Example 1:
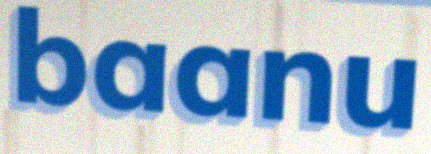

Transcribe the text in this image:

baanu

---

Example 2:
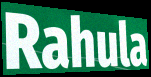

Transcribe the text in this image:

Rahula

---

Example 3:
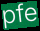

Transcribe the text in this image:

pfe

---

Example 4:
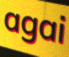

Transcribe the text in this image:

agai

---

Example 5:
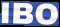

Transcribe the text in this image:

IBO